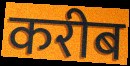
करीब